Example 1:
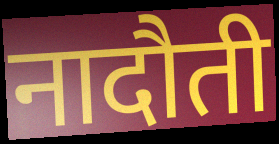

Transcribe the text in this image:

नादौती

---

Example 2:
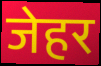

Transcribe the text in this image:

जेहर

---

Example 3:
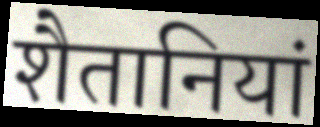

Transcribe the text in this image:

शैतानियां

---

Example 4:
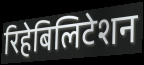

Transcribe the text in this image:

रिहेबिलिटेशन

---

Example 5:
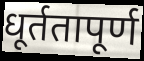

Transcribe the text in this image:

धूर्ततापूर्ण